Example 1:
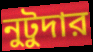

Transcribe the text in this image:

নুটুদার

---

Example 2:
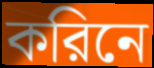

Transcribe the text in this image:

করিনে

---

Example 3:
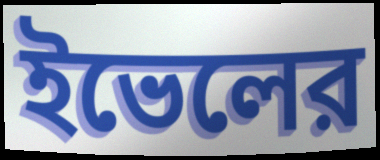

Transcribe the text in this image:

ইভেলের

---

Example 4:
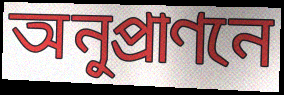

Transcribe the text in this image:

অনুপ্রাণনে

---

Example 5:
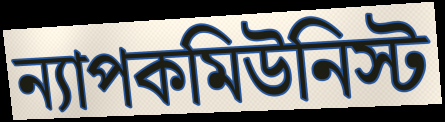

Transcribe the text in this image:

ন্যাপকমিউনিস্ট